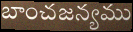
బాంచజన్యము